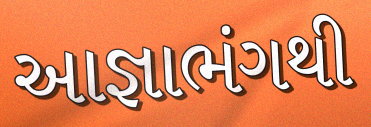
આજ્ઞાભંગથી